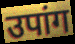
उपांग